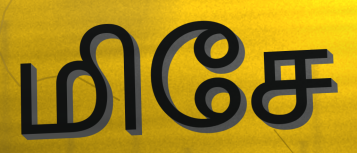
மிசே